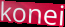
konei